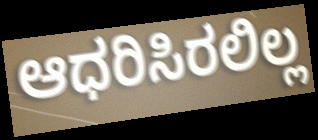
ಆಧರಿಸಿರಲಿಲ್ಲ